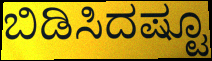
ಬಿಡಿಸಿದಷ್ಟೂ